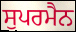
ਸੁਪਰਮੈਨ